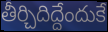
తీర్చిదిద్దేందుకే